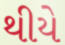
થીયે